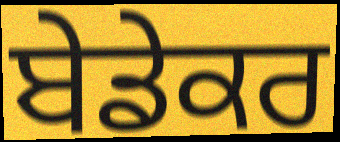
ਬੇਡੇਕਰ